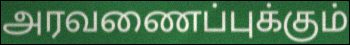
அரவணைப்புக்கும்